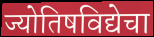
ज्योतिषविद्येचा